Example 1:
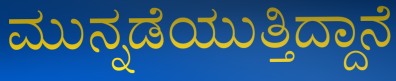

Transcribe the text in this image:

ಮುನ್ನಡೆಯುತ್ತಿದ್ದಾನೆ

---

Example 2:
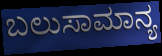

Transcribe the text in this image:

ಬಲುಸಾಮಾನ್ಯ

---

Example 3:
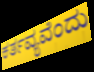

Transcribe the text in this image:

ಕರ್ತವ್ಯವೆಂದು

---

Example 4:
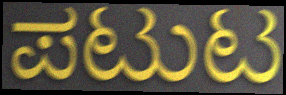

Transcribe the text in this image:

ಪಟುಟ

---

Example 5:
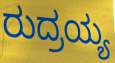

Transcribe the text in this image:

ರುದ್ರಯ್ಯ